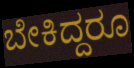
ಬೇಕಿದ್ದರೂ